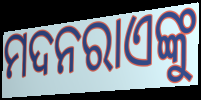
ମଦନରାଏଙ୍କୁ